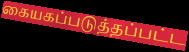
கையகப்படுத்தப்பட்ட